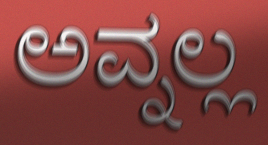
ಅವ್ನಲ್ಲ